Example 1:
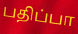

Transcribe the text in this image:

பதிப்பா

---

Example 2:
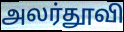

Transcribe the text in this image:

அலர்தூவி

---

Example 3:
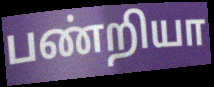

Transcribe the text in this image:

பண்றியா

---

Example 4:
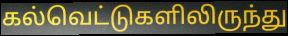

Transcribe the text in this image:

கல்வெட்டுகளிலிருந்து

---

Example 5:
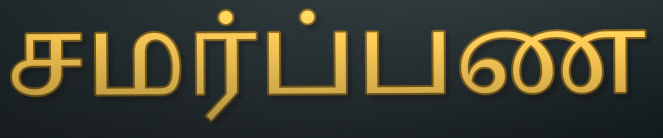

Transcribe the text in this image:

சமர்ப்பண